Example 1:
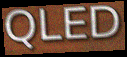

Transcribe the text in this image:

QLED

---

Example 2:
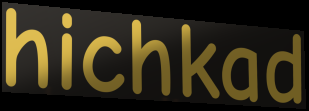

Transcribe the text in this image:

hichkad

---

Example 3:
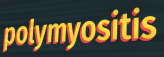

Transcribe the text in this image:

polymyositis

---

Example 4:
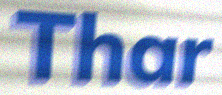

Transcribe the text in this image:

Thar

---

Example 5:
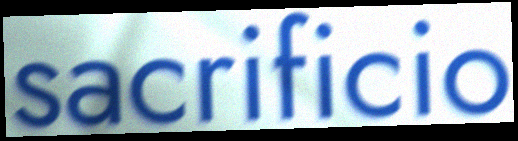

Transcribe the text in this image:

sacrificio